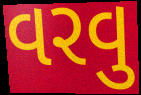
વરવુ